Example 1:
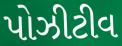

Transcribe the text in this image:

પોઝીટીવ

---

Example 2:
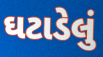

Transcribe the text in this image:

ઘટાડેલું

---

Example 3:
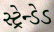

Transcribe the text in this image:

સ્ટ્રેન્ડેડ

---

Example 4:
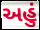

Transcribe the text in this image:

અહું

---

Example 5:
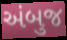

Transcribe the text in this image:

અંબુજ